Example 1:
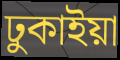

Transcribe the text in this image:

ঢুকাইয়া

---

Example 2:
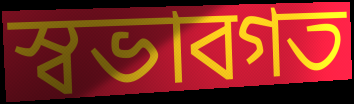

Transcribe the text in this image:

স্বভাবগত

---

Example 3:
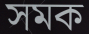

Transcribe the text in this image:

সমক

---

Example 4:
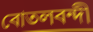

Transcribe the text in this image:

বোতলবন্দী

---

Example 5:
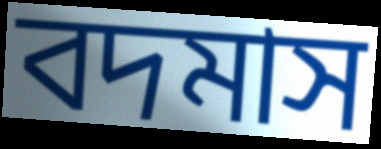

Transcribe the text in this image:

বদমাস